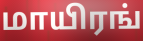
மாயிரங்